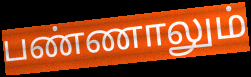
பண்ணாலும்